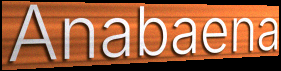
Anabaena